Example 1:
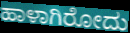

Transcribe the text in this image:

ಹಾಳಾಗಿರೋದು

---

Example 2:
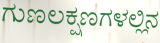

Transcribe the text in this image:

ಗುಣಲಕ್ಷಣಗಳಲ್ಲಿನ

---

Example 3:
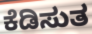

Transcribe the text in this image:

ಕೆಡಿಸುತ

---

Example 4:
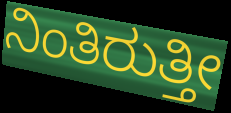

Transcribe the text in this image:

ನಿಂತಿರುತ್ತೀ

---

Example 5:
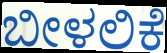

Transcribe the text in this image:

ಬೀಳಲಿಕೆ